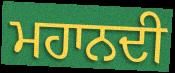
ਮਹਾਨਦੀ